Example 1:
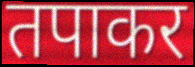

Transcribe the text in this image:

तपाकर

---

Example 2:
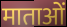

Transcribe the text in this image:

माताओं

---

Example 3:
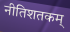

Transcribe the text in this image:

नीतिशतकम्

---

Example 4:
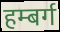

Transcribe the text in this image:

हम्बर्ग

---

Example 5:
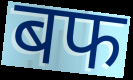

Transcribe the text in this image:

बफ